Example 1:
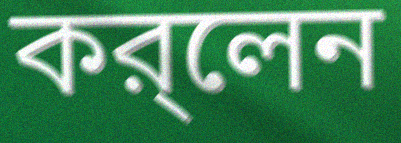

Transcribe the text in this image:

কর্‌লেন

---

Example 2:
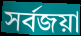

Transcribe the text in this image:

সর্বজয়া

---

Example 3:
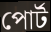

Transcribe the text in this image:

পোর্ট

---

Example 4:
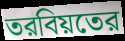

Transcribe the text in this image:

তরবিয়তের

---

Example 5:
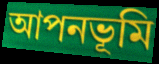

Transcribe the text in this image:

আপনভূমি